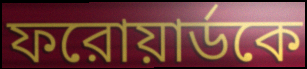
ফরোয়ার্ডকে